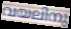
വയലിനു